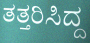
ತತ್ತರಿಸಿದ್ದ